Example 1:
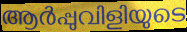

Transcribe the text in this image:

ആർപ്പുവിളിയുടെ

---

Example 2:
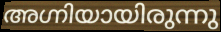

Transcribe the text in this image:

അഗ്നിയായിരുന്നു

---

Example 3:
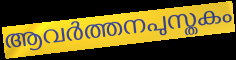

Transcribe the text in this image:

ആവർത്തനപുസ്തകം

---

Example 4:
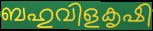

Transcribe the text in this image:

ബഹുവിളകൃഷി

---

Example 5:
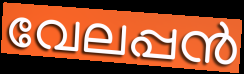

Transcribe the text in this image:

വേലപ്പൻ